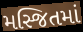
મસ્જિતમાં